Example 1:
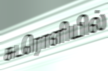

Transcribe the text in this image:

சுடரொளியில்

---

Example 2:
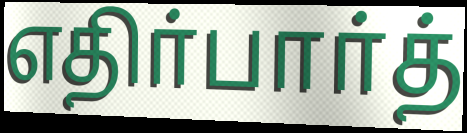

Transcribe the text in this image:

எதிர்பார்த்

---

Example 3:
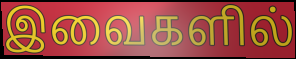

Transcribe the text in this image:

இவைகளில்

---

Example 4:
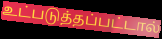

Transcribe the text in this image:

உட்படுத்தப்பட்டால்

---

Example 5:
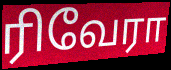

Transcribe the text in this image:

ரிவேரா